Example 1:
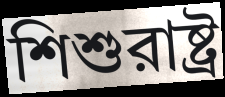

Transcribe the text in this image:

শিশুরাষ্ট্র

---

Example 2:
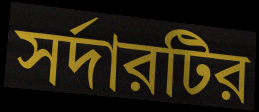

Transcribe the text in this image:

সর্দারটির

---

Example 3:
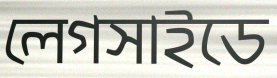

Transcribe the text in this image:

লেগসাইডে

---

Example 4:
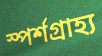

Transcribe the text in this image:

স্পর্শগ্রাহ্য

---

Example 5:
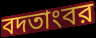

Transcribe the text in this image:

বদতাংবর